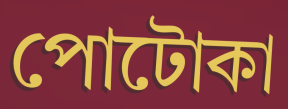
পোটোকা